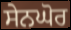
ਸੇਨਘੋਰ